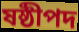
ষষ্ঠীপদ